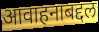
आवाहनाबद्दल